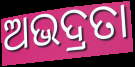
ଅଭଦ୍ରତା